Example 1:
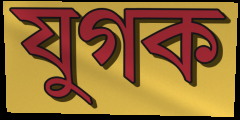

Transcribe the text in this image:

যুগক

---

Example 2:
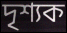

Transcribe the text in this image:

দৃশ্যক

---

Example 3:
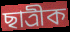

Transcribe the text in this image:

ছাত্ৰীক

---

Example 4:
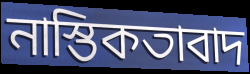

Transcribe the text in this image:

নাস্তিকতাবাদ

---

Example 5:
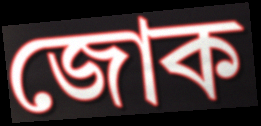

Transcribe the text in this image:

জোক